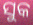
ସୁକ